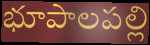
భూపాలపల్లి